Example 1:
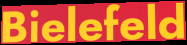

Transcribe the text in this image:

Bielefeld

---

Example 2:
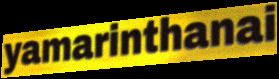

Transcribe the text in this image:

yamarinthanai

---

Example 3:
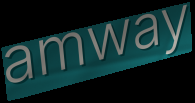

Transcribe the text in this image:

amway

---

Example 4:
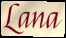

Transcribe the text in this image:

Lana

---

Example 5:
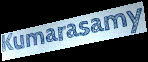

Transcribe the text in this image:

Kumarasamy